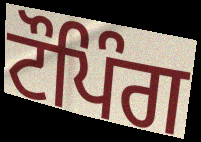
ਟੌਪਿੰਗ